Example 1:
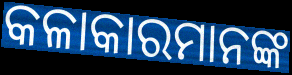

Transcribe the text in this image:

କଳାକାରମାନଙ୍କ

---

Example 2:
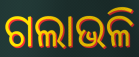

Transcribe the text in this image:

ଗଲାଭଳି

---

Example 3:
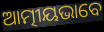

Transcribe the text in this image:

ଆତ୍ମୀୟଭାବେ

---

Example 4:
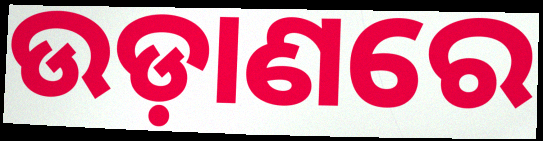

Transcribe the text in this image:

ଉଡ଼ାଣରେ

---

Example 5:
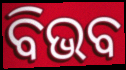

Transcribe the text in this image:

ବିଭବ